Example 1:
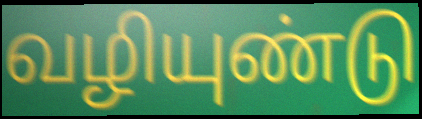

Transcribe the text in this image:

வழியுண்டு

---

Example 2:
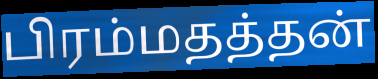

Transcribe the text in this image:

பிரம்மதத்தன்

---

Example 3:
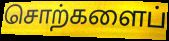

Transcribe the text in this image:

சொற்களைப்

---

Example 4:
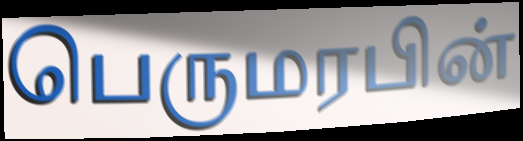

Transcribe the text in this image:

பெருமரபின்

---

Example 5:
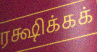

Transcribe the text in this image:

ரக்ஷிக்கக்